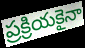
ప్రక్రియకైనా